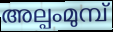
അല്പംമുമ്പ്